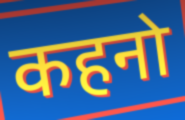
कहनो